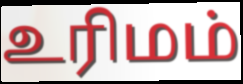
உரிமம்